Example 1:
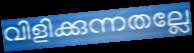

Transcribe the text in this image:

വിളിക്കുന്നതല്ലേ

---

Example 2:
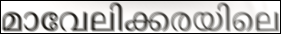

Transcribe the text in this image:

മാവേലിക്കരയിലെ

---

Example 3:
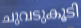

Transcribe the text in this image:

ചുവടുകൂടി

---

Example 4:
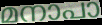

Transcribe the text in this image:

മനാപാ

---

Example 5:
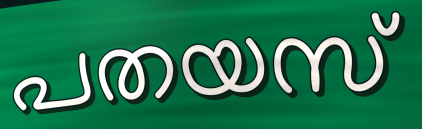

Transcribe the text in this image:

പതയസ്